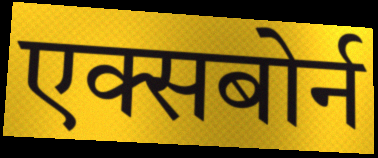
एक्सबोर्न